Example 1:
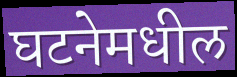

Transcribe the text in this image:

घटनेमधील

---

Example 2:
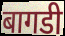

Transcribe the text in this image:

बागडी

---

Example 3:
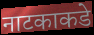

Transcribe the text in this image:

नाटकाकडे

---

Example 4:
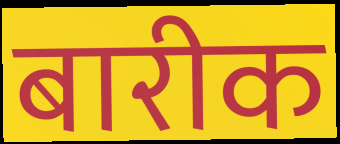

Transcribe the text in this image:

बारीक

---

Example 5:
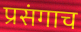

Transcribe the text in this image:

प्रसंगाच